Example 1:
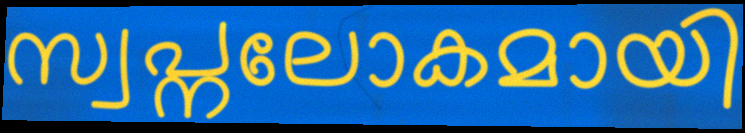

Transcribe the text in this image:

സ്വപ്നലോകമായി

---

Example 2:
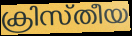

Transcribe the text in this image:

ക്രിസ്‌തീയ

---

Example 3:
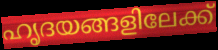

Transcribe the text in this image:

ഹൃദയങ്ങളിലേക്ക്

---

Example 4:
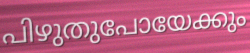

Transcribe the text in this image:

പിഴുതുപോയേക്കും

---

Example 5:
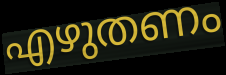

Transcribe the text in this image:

എഴുതണം